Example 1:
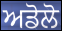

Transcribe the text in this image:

ਅਡੋਲੋ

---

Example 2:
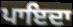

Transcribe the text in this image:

ਪਾਇਦਾ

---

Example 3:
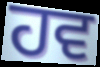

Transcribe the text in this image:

ਹਵ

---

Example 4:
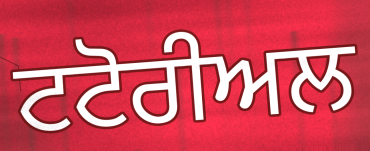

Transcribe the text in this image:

ਟਟੋਰੀਅਲ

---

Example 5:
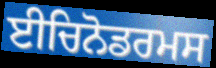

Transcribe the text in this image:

ਈਚਿਨੋਡਰਮਸ